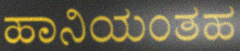
ಹಾನಿಯಂತಹ